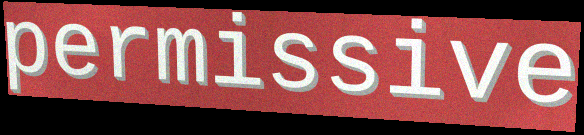
permissive